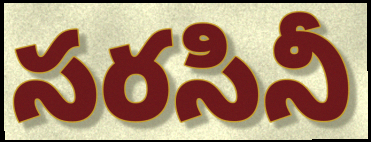
సరసినీ